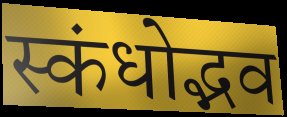
स्कंधोद्भव